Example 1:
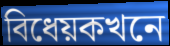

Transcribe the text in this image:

বিধেয়কখনে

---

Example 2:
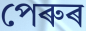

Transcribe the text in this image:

পেৰুৰ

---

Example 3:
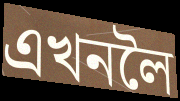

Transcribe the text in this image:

এখনলৈ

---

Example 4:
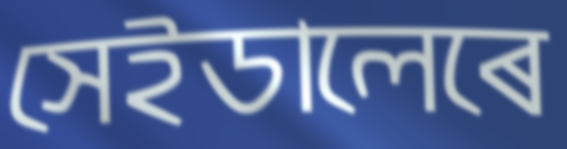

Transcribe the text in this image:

সেইডালেৰে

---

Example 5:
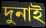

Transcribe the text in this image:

দুনাই